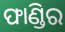
ଫାଣ୍ଡିର